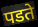
पडते